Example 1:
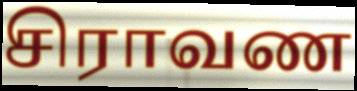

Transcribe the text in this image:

சிராவண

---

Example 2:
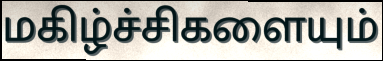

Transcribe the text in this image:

மகிழ்ச்சிகளையும்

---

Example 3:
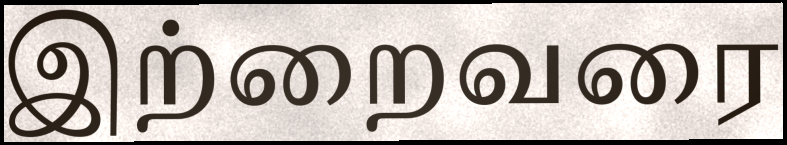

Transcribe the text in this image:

இற்றைவரை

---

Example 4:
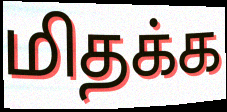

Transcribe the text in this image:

மிதக்க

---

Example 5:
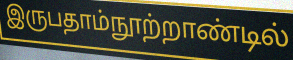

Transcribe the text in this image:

இருபதாம்நூற்றாண்டில்